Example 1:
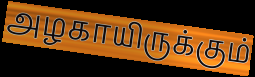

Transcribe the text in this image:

அழகாயிருக்கும்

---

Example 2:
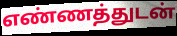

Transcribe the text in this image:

எண்ணத்துடன்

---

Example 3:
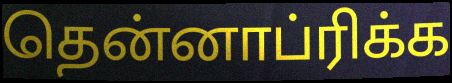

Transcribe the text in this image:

தென்னாப்ரிக்க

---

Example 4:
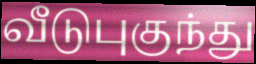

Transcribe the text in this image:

வீடுபுகுந்து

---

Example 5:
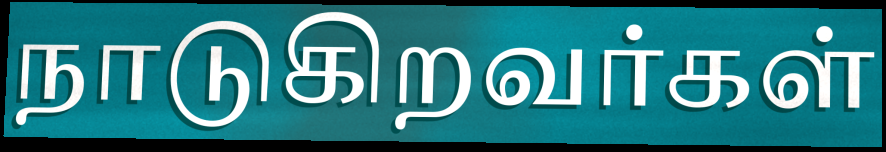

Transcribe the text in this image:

நாடுகிறவர்கள்